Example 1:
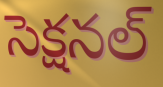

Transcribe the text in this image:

సెక్షనల్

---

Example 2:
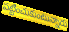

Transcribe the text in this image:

పట్టించుకుంటున్నారు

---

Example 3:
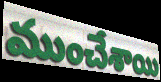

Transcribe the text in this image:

ముంచేశాయి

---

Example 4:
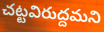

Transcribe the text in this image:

చట్టవిరుద్దమని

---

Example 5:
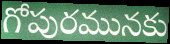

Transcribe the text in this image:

గోపురమునకు